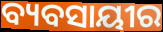
ବ୍ୟବସାୟୀର